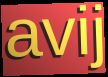
avij